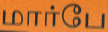
மார்பே